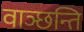
वाञ्छन्ति